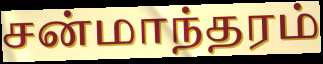
சன்மாந்தரம்